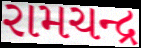
રામચન્દ્ર